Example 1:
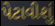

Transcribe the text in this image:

પેટાવીશું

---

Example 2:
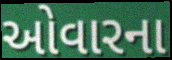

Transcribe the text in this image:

ઓવારના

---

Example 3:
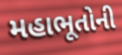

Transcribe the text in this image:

મહાભૂતોની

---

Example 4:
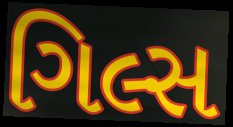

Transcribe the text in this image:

ગિલ્સ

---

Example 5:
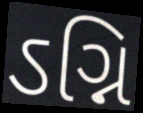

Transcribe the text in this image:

ઽગ્નિ